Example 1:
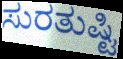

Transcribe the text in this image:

ಸುರತುಷ್ಟಿ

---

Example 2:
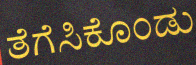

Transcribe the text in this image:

ತೆಗೆಸಿಕೊಂಡು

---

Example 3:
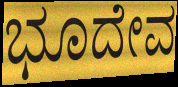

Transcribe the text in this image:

ಭೂದೇವ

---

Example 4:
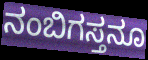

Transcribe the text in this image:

ನಂಬಿಗಸ್ತನೂ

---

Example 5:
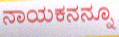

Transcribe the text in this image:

ನಾಯಕನನ್ನೂ